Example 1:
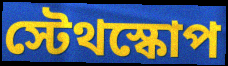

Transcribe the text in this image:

স্টেথস্কোপ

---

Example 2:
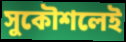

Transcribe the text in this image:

সুকৌশলেই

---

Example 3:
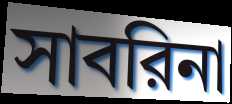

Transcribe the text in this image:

সাবরিনা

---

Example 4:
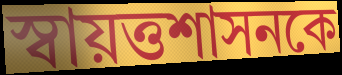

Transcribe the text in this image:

স্বায়ত্তশাসনকে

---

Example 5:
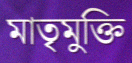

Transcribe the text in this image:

মাতৃমুক্তি